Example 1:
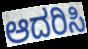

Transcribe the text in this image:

ಆದರಿಸಿ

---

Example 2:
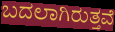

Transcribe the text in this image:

ಬದಲಾಗಿರುತ್ತವೆ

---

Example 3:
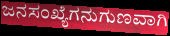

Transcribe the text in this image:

ಜನಸಂಖ್ಯೆಗನುಗುಣವಾಗಿ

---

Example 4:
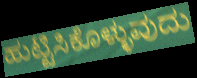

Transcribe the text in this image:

ಹುಟ್ಟಿಸಿಕೊಳ್ಳುವುದು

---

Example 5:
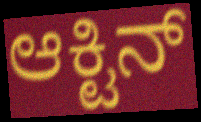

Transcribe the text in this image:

ಆಕ್ಟಿನ್